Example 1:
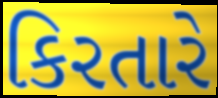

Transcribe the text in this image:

કિરતારે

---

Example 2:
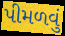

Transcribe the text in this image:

પીમળવું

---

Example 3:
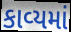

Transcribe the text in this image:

કાવ્‍યમાં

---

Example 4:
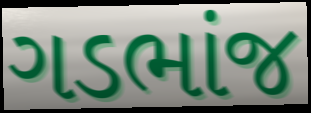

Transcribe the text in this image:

ગડભાંજ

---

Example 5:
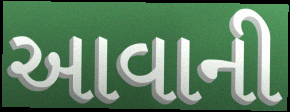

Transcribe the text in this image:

આવાની